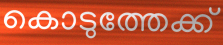
കൊടുത്തേക്ക്